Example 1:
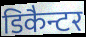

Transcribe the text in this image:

डिकैन्टर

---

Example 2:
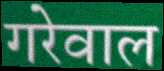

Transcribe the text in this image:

गरेवाल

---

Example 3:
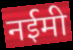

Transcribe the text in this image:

नईमी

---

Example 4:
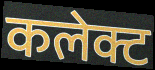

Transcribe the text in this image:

कलेक्ट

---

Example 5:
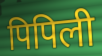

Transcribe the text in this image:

पिपिली